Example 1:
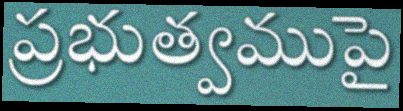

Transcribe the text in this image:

ప్రభుత్వముపై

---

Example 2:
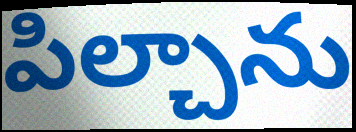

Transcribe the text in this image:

పిల్చాను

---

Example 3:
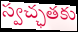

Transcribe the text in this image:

స్వచ్ఛతకు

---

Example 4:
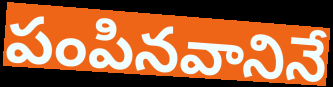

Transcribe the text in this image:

పంపినవానినే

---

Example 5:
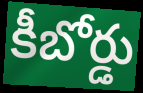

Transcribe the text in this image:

కీబోర్డు